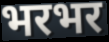
भरभर